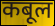
कबूल